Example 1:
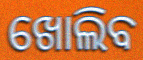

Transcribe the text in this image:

ଖୋଲିବ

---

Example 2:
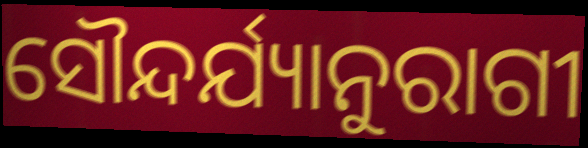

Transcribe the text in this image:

ସୌନ୍ଦର୍ଯ୍ୟାନୁରାଗୀ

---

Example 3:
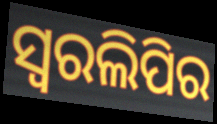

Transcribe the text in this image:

ସ୍ୱରଲିପିର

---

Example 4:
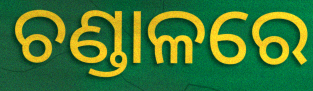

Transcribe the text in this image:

ଚଣ୍ଡାଳରେ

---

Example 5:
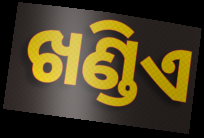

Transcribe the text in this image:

ଖଣ୍ଡିଏ